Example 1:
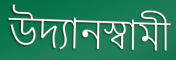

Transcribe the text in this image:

উদ্যানস্বামী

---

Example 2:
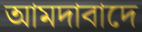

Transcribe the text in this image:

আমদাবাদে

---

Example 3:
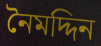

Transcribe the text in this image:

নৈমদ্দিন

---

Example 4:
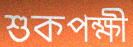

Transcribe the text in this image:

শুকপক্ষী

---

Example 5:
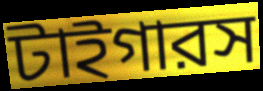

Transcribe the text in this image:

টাইগারস